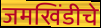
जमखिंडीचे